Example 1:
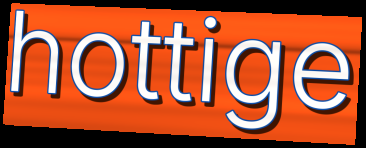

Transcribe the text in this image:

hottige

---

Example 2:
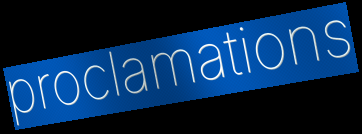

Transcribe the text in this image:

proclamations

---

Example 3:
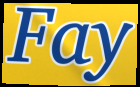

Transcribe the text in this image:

Fay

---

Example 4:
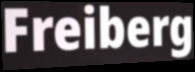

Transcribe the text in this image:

Freiberg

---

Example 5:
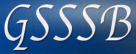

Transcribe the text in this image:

GSSSB